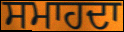
ਸਮਾਹਦਾ